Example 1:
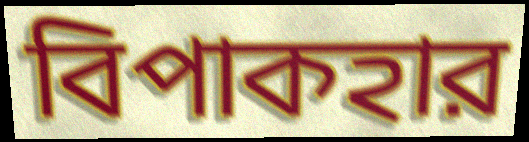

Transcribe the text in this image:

বিপাকহার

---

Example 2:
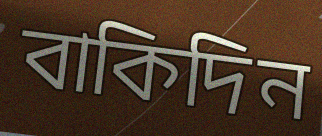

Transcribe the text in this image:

বাকিদিন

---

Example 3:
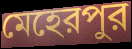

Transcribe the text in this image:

মেহেরপুর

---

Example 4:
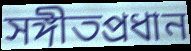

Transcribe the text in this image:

সঙ্গীতপ্রধান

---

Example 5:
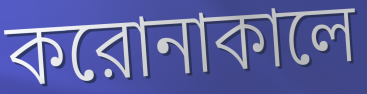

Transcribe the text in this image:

করোনাকালে